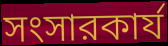
সংসারকার্য